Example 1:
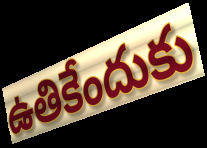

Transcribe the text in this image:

ఉతికేందుకు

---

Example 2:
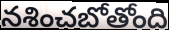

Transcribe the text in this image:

నశించబోతోంది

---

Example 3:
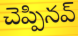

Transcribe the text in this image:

చెప్పినవ్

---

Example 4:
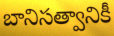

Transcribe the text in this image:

బానిసత్వానికీ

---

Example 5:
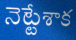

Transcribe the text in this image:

నెట్టేశాక